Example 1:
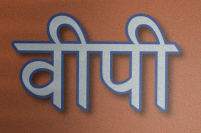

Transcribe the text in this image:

वीपी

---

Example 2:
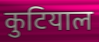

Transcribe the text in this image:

कुटियाल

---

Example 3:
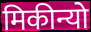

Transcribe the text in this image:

मिकीन्यो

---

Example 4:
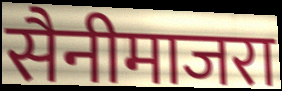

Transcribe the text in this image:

सैनीमाजरा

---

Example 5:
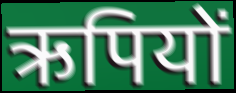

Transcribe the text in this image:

ऋपियों